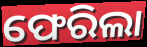
ଫେରିଲା